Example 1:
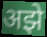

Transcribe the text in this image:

अझे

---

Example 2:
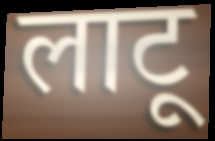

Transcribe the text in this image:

लाटू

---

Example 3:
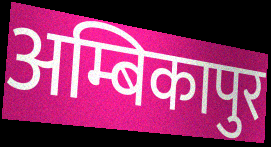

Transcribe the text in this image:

अम्बिकापुर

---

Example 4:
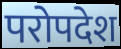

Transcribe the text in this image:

परोपदेश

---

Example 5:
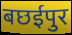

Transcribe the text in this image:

बछईपुर